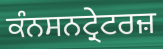
ਕੰਨਸਨਟ੍ਰੇਟਰਜ਼